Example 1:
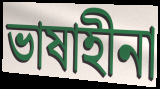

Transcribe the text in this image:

ভাষাহীনা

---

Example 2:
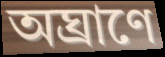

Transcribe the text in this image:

অঘ্রাণে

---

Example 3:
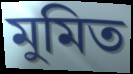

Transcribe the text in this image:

মুমিত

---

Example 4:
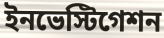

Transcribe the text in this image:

ইনভেস্টিগেশন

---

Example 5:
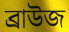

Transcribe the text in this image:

ব্রাউজ